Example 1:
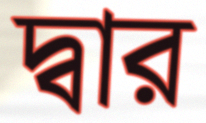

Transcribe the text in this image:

দ্বার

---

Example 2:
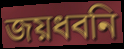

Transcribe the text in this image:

জয়ধবনি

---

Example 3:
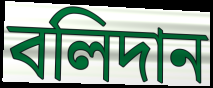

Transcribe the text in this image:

বলিদান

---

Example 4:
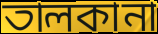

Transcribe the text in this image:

তালকানা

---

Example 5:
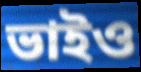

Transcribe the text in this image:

ভাইও